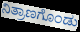
ನಿತ್ರಾಣಗೊಂಡು